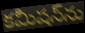
కమీషన్‌ను